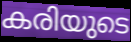
കരിയുടെ